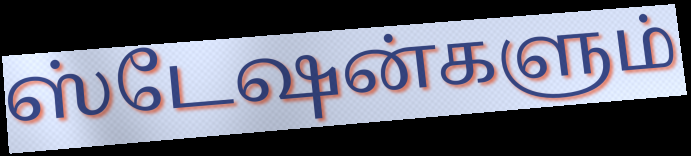
ஸ்டேஷன்களும்